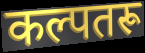
कल्पतरू